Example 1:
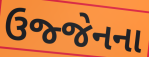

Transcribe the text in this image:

ઉજ્જેનના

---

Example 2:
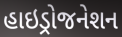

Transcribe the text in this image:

હાઇડ્રોજનેશન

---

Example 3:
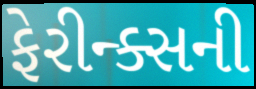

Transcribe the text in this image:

ફેરીન્ક્સની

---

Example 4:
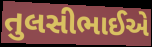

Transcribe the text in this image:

તુલસીભાઈએ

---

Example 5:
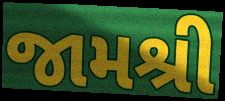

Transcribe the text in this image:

જામશ્રી